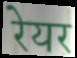
रेयर